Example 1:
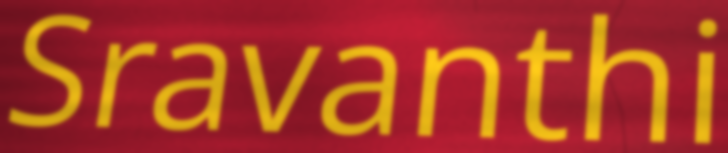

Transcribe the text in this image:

Sravanthi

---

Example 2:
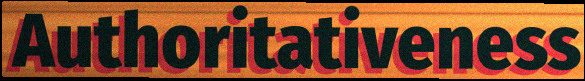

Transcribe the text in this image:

Authoritativeness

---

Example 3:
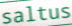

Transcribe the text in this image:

saltus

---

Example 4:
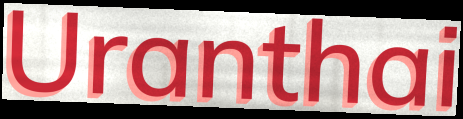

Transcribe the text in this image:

Uranthai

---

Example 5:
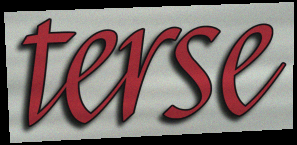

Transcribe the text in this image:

terse